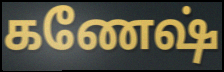
கணேஷ்